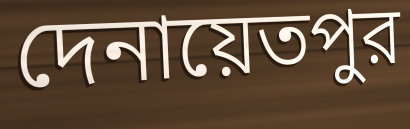
দেনায়েতপুর